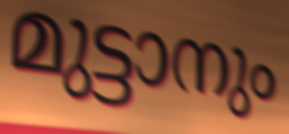
മുട്ടാനും